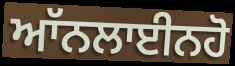
ਆੱਨਲਾਈਨਹੋ